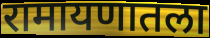
रामायणातला